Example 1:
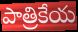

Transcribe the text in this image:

పాత్రికేయ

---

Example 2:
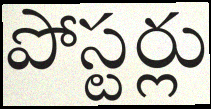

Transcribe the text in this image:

పోస్టర్లు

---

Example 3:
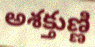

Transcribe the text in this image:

అశక్తుణ్ణి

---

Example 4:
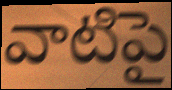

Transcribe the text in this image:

వాటిపై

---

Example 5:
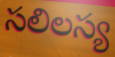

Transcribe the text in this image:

సలిలస్య